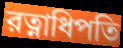
রত্নাধিপতি